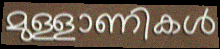
മുള്ളാണികൾ